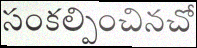
సంకల్పించినచో